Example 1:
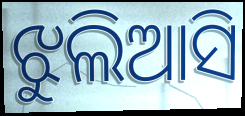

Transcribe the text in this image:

ଝୁଲିଆସି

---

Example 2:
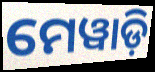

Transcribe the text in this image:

ମେୱାଡ଼ି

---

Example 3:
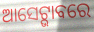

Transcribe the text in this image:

ଆସେଟ୍ଭାବରେ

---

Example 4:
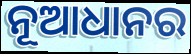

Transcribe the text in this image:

ନୂଆଧାନର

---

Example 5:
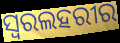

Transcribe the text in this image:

ସ୍ୱରଲହରୀର